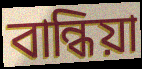
বান্ধিয়া